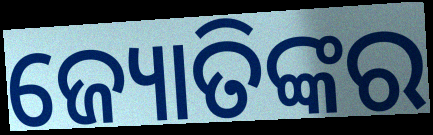
ଜ୍ୟୋତିଙ୍କର